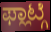
ಫ್ಲಾಟ್ಗೆ